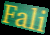
Fali